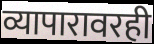
व्यापारावरही